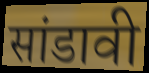
सांडावी